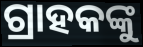
ଗ୍ରାହକଙ୍କୁ